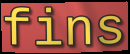
fins